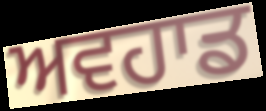
ਅਵਹਾਡ